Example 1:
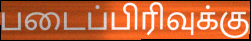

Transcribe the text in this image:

படைப்பிரிவுக்கு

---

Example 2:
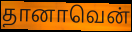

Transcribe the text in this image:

தானாவென்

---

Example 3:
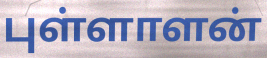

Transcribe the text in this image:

புள்ளாளன்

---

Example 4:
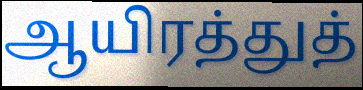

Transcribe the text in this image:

ஆயிரத்துத்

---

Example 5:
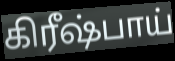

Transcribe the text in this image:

கிரீஷ்பாய்